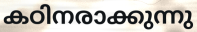
കഠിനരാക്കുന്നു